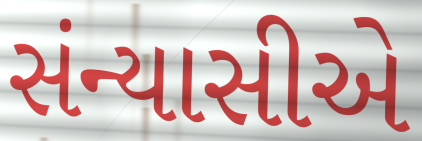
સંન્યાસીએ